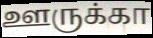
ஊருக்கா